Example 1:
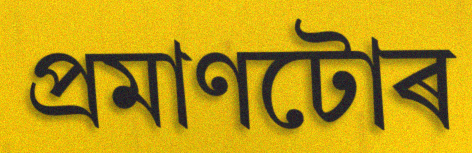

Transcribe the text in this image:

প্ৰমাণটোৰ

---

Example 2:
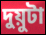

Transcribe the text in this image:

দুয়ুটা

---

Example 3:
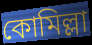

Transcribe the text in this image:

কোমিল্লা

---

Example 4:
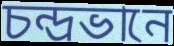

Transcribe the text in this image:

চন্দ্ৰভানে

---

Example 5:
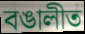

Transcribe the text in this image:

বঙালীত